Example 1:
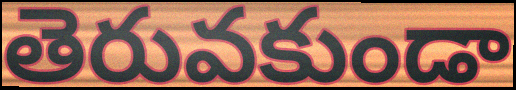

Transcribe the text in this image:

తెరువకుండా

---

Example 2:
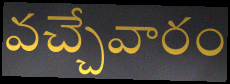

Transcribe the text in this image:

వచ్చేవారం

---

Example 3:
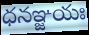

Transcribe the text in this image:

ధనఞ్జయః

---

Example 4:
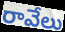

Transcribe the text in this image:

రావేలు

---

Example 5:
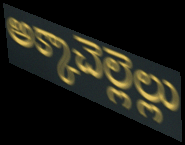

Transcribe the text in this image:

అక్కాచెల్లెల్లు